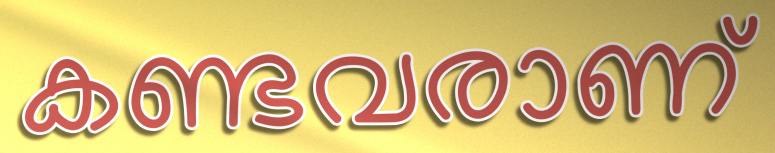
കണ്ടവരാണ്